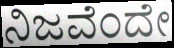
ನಿಜವೆಂದೇ